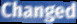
Changed